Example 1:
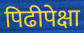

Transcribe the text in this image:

पिढीपेक्षा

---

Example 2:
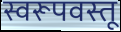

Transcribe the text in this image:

स्वरूपवस्तू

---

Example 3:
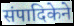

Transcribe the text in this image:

संपादिकेने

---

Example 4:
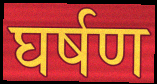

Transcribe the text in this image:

घर्षण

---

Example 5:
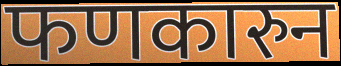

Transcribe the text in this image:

फणकारुन